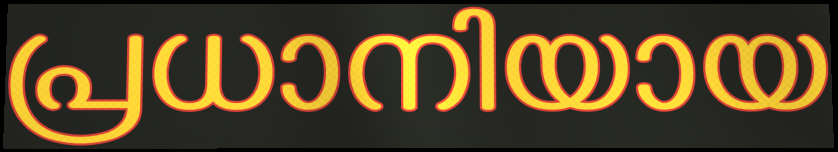
പ്രധാനിയായ